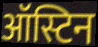
ऑस्टिन